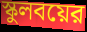
স্কুলবয়ের